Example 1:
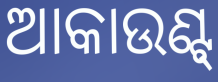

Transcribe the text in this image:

ଆକାଉଣ୍ଟ୍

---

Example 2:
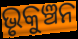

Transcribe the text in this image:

ଭୃକୁଞ୍ଚନ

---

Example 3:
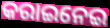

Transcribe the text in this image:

କରାଇନେଇ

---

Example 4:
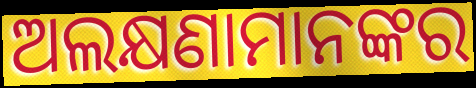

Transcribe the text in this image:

ଅଲକ୍ଷଣାମାନଙ୍କର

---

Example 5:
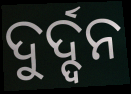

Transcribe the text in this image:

ଦୁର୍ଦ୍ଦନ